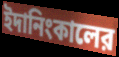
ইদানিংকালের